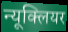
न्यूक्लियर